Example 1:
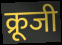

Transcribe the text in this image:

क्रूजी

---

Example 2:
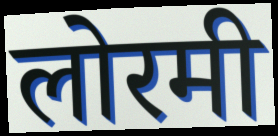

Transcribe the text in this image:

लोरमी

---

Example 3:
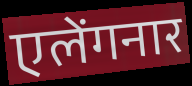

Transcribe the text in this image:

एलेंगनार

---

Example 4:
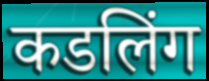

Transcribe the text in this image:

कडलिंग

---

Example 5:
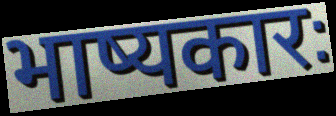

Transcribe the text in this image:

भाष्यकारः